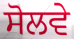
ਸੋਲਵੇ